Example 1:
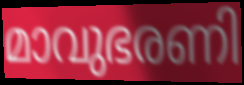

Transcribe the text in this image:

മാവുഭരണി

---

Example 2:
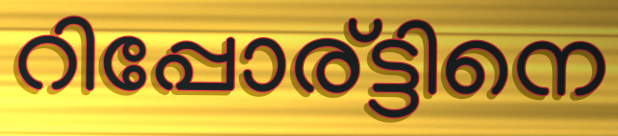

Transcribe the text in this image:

റിപ്പോര്ട്ടിനെ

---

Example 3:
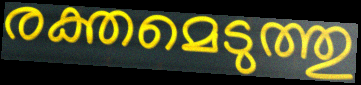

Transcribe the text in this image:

രക്തമെടുത്തു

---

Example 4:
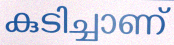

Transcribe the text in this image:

കുടിച്ചാണ്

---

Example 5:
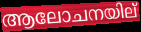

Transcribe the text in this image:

ആലോചനയില്